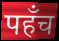
पहँच